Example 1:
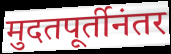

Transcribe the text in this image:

मुदतपूर्तीनंतर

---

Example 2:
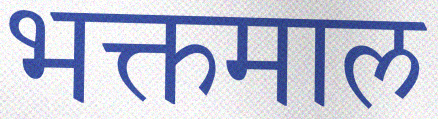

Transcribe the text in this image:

भक्तमाल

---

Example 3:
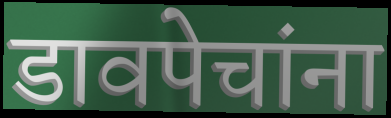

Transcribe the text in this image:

डावपेचांना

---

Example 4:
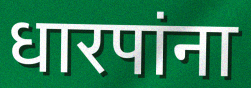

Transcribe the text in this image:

धारपांना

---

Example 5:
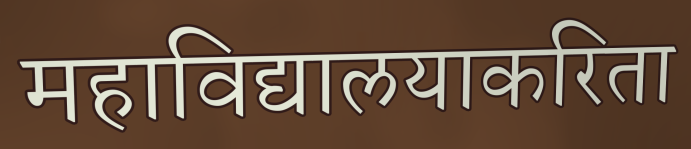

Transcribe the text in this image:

महाविद्यालयाकरिता